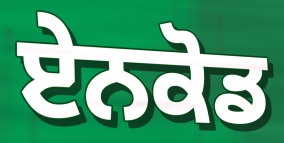
ਏਨਕੋਡ